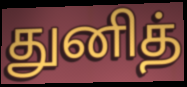
துனித்